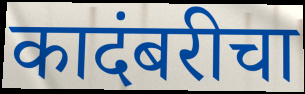
कादंबरीचा